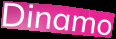
Dinamo